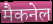
मैकनेल